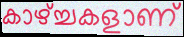
കാഴ്ച്ചകളാണ്